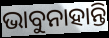
ଭାବୁନାହାନ୍ତି